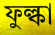
ফুল্কা